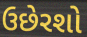
ઉછેરશો